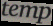
temp